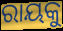
ରାୟକୁ